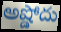
అష్డోదు